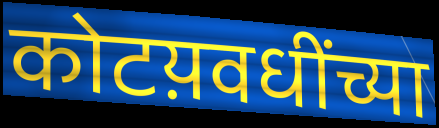
कोटय़वधींच्या